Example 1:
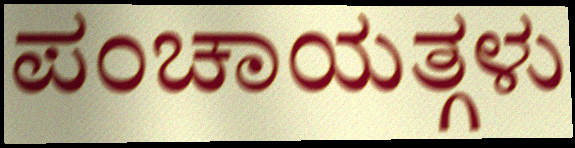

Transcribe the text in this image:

ಪಂಚಾಯತ್ಗಳು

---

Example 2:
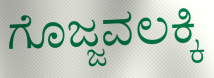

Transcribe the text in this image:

ಗೊಜ್ಜವಲಕ್ಕಿ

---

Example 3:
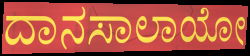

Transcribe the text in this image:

ದಾನಸಾಲಾಯೋ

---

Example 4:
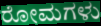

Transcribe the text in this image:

ರೋಮಗಳು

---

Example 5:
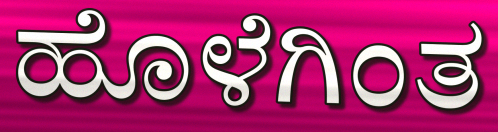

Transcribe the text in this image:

ಹೊಳೆಗಿಂತ